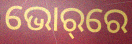
ଭୋର୍‌ରେ